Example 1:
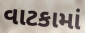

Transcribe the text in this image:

વાટકામાં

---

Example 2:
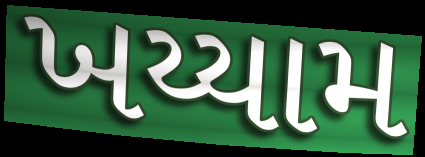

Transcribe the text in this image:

ખય્યામ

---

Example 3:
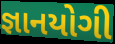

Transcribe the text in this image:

જ્ઞાનયોગી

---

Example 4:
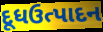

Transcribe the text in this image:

દૂધઉત્પાદન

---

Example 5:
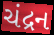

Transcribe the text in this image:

ચંદ્રન